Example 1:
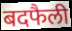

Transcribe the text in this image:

बदफैली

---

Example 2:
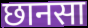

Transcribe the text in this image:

छानसा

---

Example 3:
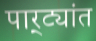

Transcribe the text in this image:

पार्ट्यांत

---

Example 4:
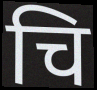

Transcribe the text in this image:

चि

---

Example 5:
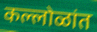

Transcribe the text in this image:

कल्लोळांत